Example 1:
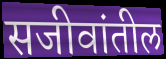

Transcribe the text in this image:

सजीवांतील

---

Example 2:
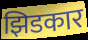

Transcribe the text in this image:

झिडकार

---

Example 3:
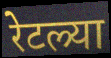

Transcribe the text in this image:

रेटल्या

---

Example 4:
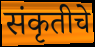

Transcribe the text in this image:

संकृतीचे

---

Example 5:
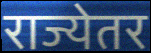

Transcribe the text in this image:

राज्येतर